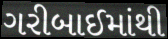
ગરીબાઈમાંથી